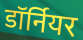
डॉर्नियर